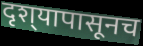
दृश्यापासूनच